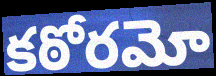
కఠోరమో